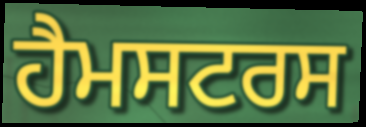
ਹੈਮਸਟਰਸ